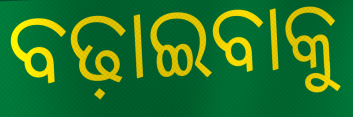
ବଢ଼ାଇବାକୁ